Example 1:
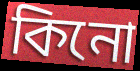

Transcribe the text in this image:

কিনো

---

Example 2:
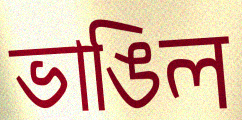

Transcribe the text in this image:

ভাঙিল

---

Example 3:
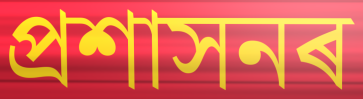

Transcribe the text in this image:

প্ৰশাসনৰ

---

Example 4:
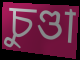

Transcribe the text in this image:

চুণ্ডা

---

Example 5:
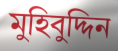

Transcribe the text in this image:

মুহিবুদ্দিন